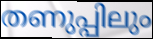
തണുപ്പിലും